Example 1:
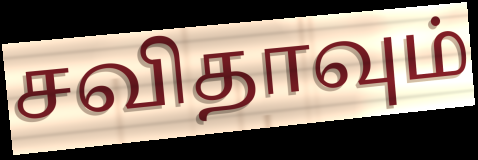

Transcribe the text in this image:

சவிதாவும்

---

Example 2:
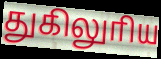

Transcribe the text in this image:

துகிலுரிய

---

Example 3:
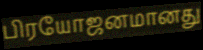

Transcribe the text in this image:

பிரயோஜனமானது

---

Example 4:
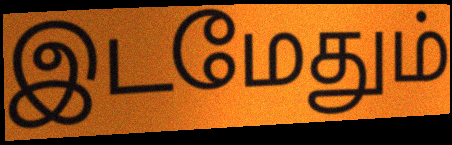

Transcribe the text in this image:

இடமேதும்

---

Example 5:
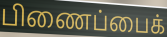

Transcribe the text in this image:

பிணைப்பைக்